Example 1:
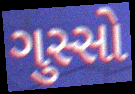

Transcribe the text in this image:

ગુસ્સો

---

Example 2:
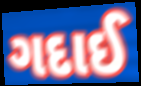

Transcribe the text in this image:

ગદાઈ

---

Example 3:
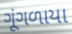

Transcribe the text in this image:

ગૂંગળાયા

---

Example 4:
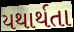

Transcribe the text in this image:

યથાર્થતા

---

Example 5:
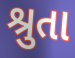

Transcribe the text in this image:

શ્રુતા